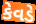
કેવડે